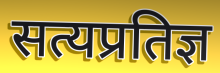
सत्यप्रतिज्ञ